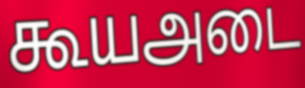
கூயஅடை